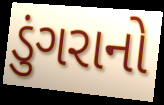
ડુંગરાનો